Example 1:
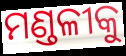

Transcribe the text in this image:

ମଣ୍ଡଳୀକୁ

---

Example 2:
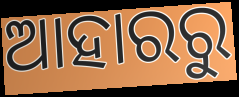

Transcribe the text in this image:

ଆହାରରୁ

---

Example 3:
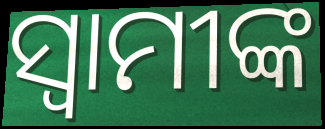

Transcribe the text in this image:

ସ୍ଵାମୀଙ୍କ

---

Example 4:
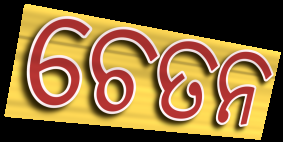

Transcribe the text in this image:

ଚେତନ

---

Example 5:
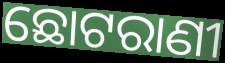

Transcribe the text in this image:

ଛୋଟରାଣୀ